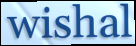
wishal